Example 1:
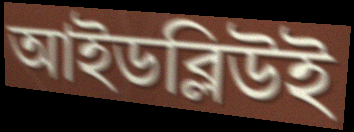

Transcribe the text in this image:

আইডব্লিউই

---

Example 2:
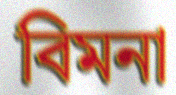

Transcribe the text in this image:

বিমনা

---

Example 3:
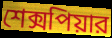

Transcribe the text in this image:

শেক্সপিয়ার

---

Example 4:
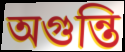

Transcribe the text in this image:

অগুন্তি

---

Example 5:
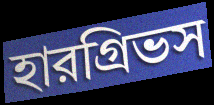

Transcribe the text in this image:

হারগ্রিভস